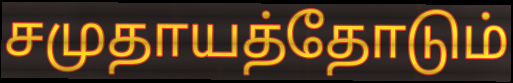
சமுதாயத்தோடும்